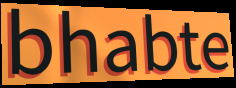
bhabte